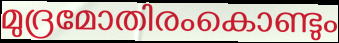
മുദ്രമോതിരംകൊണ്ടും